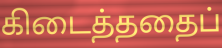
கிடைத்ததைப்